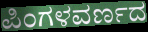
ಪಿಂಗಳವರ್ಣದ